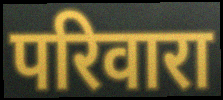
परिवारा